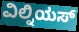
ವಿಲ್ನಿಯಸ್